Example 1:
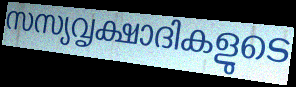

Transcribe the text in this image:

സസ്യവൃക്ഷാദികളുടെ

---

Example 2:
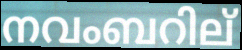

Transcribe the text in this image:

നവംബറില്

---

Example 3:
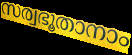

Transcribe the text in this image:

സര്വഭൂതാനാം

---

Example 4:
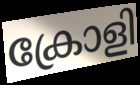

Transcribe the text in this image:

ക്രോളി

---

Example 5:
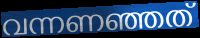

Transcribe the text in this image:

വന്നണഞ്ഞത്